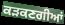
ਕੜਕਣਗੀਆਂ